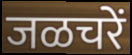
जळचरें